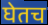
घेतच